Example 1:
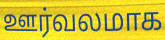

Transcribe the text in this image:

ஊர்வலமாக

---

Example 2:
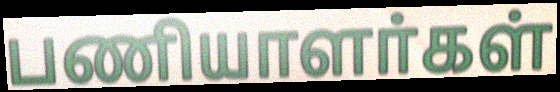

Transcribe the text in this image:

பணியாளர்கள்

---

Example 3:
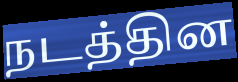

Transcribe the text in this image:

நடத்தின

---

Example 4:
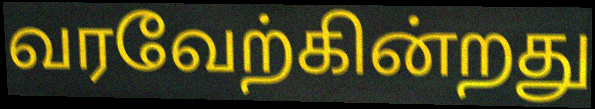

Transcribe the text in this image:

வரவேற்கின்றது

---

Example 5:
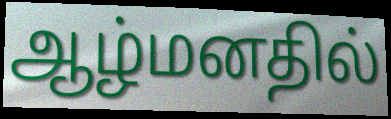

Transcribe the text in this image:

ஆழ்மனதில்